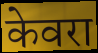
केवरा